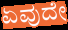
ಏವುದೇ